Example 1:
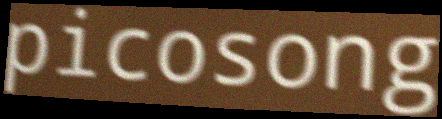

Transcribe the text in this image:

picosong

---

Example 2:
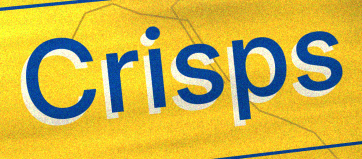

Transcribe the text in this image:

Crisps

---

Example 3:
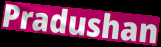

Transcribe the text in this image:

Pradushan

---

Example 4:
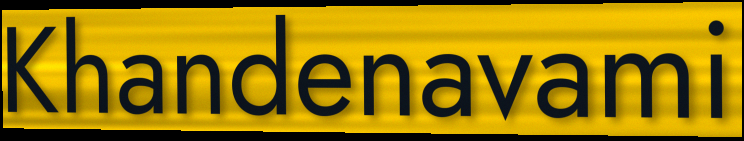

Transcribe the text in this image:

Khandenavami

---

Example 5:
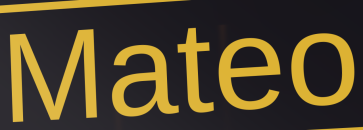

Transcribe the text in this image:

Mateo